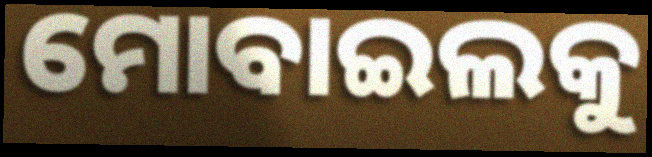
ମୋବାଇଲକୁ